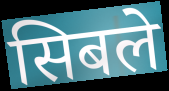
सिबले